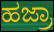
ಹಜ್ರಾ